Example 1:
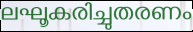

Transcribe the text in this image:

ലഘൂകരിച്ചുതരണം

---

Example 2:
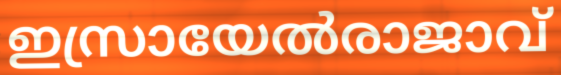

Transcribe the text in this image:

ഇസ്രായേൽരാജാവ്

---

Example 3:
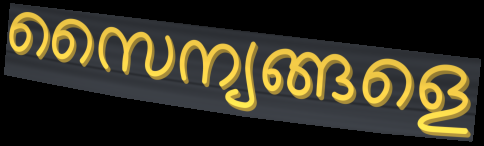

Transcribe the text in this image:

സൈന്യങ്ങളെ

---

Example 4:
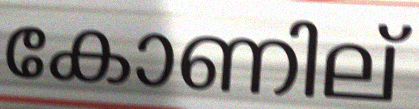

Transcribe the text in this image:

കോണില്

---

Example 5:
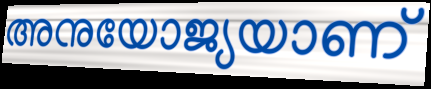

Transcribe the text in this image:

അനുയോജ്യയാണ്